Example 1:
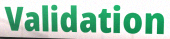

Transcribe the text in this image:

Validation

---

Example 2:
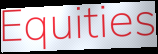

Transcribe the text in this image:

Equities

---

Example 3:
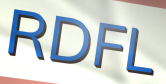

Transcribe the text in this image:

RDFL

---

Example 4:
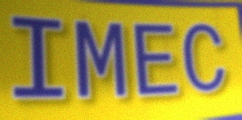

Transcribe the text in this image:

IMEC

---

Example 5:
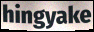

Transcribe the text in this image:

hingyake